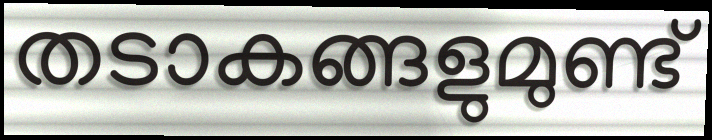
തടാകങ്ങളുമുണ്ട്